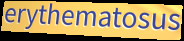
erythematosus